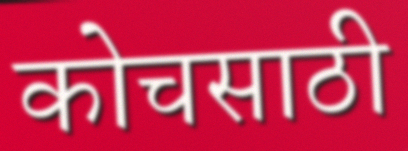
कोचसाठी